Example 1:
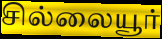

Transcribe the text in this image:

சில்லையூர்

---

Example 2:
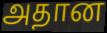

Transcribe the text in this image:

அதான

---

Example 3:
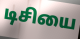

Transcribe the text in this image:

டிசியை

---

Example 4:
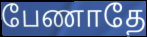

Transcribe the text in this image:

பேணாதே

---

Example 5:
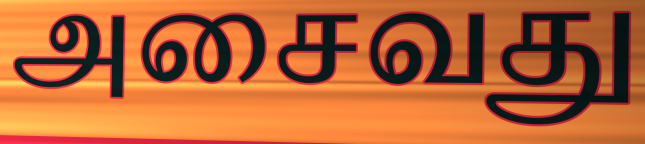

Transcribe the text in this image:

அசைவது